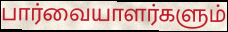
பார்வையாளர்களும்